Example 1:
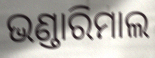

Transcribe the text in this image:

ଭଣ୍ଡାରିମାଲ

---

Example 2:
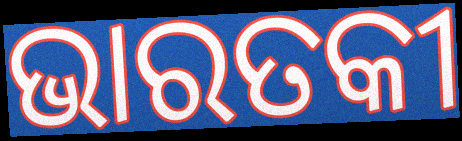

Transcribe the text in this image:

ଭାରତକୀ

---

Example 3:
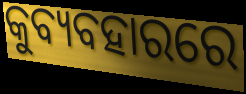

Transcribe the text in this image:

କୁବ୍ୟବହାରରେ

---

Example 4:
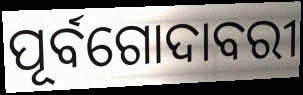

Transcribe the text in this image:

ପୂର୍ବଗୋଦାବରୀ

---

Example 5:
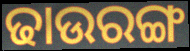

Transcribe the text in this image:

ଢାଉରଙ୍ଗ